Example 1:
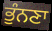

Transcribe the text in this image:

ਭੁੰਨਣਾ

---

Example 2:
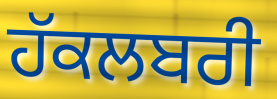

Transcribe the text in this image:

ਹੱਕਲਬਰੀ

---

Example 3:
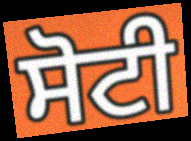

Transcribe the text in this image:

ਸੋਟੀ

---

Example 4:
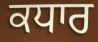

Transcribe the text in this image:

ਕਧਾਰ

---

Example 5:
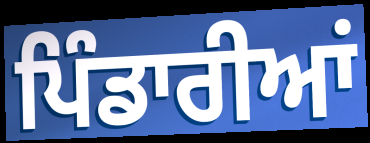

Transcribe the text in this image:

ਪਿੰਡਾਰੀਆਂ